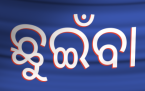
ଛୁଇଁବା